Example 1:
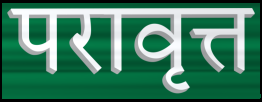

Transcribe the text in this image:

परावृत्त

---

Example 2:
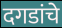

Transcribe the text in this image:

दगडांचे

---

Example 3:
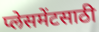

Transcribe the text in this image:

प्लेसमेंटसाठी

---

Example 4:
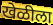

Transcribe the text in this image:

खेळीला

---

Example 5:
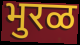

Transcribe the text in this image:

भुरळ